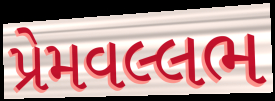
પ્રેમવલ્લભ